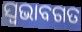
ସ୍ୱଭାବଗତ